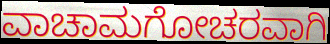
ವಾಚಾಮಗೋಚರವಾಗಿ